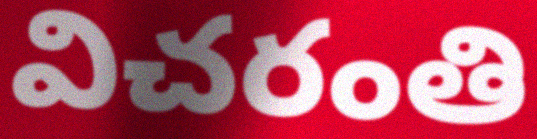
విచరంతి